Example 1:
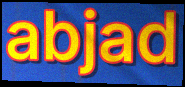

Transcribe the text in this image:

abjad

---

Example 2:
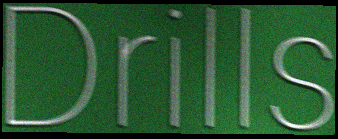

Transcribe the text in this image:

Drills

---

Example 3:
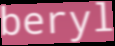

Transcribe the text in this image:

beryl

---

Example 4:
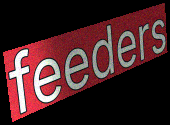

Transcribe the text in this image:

feeders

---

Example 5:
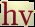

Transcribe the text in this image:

hv